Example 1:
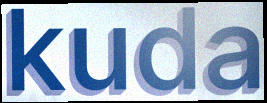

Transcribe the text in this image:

kuda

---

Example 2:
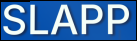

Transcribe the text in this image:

SLAPP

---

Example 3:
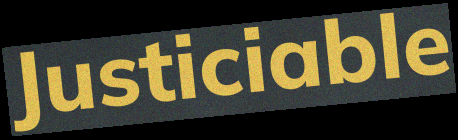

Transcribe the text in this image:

Justiciable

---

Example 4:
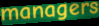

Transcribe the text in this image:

managers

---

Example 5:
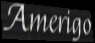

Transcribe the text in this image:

Amerigo